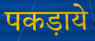
पकड़ाये